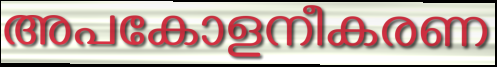
അപകോളനീകരണ